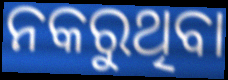
ନକରୁଥିବା